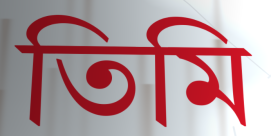
তিমি